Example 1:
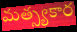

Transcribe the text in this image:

మత్స్యకార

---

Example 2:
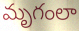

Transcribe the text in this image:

మృగంలా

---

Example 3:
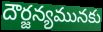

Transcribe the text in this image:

దౌర్జన్యమునకు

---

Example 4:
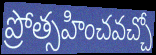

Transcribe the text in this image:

ప్రోత్సహించవచ్చో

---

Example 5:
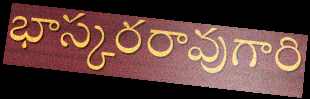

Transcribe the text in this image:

భాస్కరరావుగారి